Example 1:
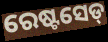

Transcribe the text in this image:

ରେଷ୍ଟସେଡ୍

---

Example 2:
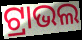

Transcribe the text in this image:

ଟ୍ରାଭଲ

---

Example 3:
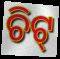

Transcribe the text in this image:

ଚିଟ୍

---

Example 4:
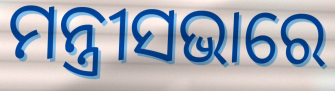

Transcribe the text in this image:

ମନ୍ତ୍ରୀସଭାରେ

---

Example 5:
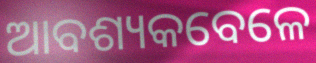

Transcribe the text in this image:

ଆବଶ୍ୟକବେଳେ